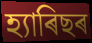
হ্যাৰিছৰ